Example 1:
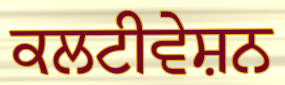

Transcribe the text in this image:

ਕਲਟੀਵੇਸ਼ਨ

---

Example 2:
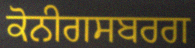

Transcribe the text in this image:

ਕੋਨੀਗਸਬਰਗ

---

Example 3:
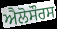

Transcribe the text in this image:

ਐਲੋਸੌਰਸ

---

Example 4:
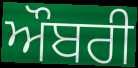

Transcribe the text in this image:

ਔਬਰੀ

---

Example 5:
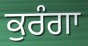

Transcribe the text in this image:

ਕੁਰੰਗਾ